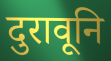
दुरावूनि